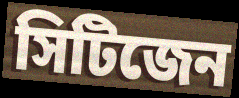
সিটিজেন